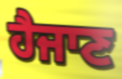
ਹੈਜਾਣ